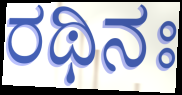
ರಥಿನಃ